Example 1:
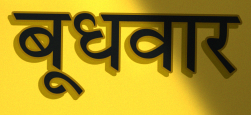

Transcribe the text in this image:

बूधवार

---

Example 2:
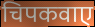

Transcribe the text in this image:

चिपकवाए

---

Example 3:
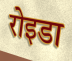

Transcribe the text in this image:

रोइडा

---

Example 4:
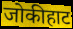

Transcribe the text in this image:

जोकीहाट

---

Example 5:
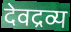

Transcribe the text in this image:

देवद्रव्य